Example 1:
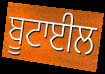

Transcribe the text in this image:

ਬੂਟਾਈਲ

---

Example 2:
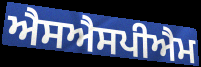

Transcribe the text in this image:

ਐਸਐਸਪੀਐਮ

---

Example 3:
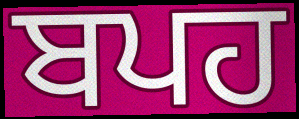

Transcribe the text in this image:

ਬਪਹ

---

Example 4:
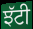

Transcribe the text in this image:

ਝੱਟੀ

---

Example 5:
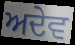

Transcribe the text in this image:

ਅਦੇਵ